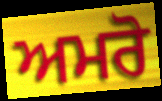
ਅਮਰੋ